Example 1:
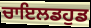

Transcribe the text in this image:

ਚਾਇਲਡਹੁਡ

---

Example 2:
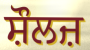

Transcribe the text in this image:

ਸ਼ੌਲਜ਼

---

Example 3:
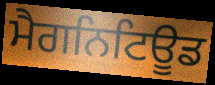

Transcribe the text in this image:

ਮੈਗਨਿਟਿਊਡ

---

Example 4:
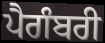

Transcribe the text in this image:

ਪੈਗੰਬਰੀ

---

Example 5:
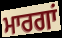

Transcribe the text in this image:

ਮਾਰਗਾਂ